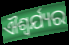
ଐଶ୍ଵର୍ଯ୍ୟର